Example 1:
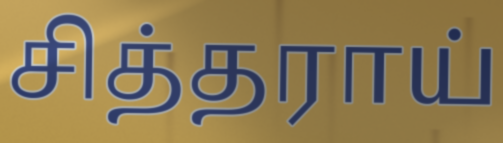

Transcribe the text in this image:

சித்தராய்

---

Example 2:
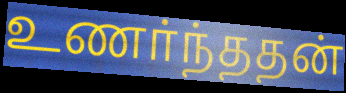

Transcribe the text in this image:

உணர்ந்ததன்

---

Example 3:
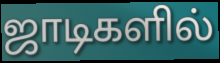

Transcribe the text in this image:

ஜாடிகளில்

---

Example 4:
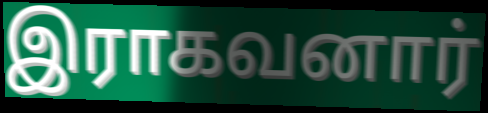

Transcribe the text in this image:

இராகவனார்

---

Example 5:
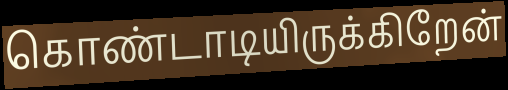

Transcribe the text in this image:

கொண்டாடியிருக்கிறேன்